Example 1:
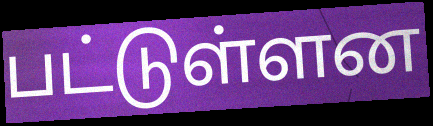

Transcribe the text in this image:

பட்டுள்ளன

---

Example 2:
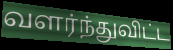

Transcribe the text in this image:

வளர்ந்துவிட்ட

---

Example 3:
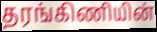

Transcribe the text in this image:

தரங்கிணியின்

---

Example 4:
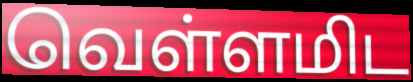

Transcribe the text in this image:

வெள்ளமிட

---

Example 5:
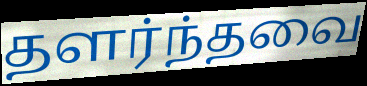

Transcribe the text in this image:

தளர்ந்தவை